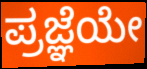
ಪ್ರಜ್ಞೆಯೇ